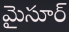
మైసూర్